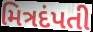
મિત્રદંપતી